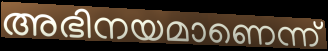
അഭിനയമാണെന്ന്